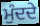
ਮੁੰਦਦੇ